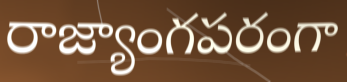
రాజ్యాంగపరంగా